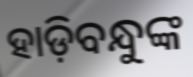
ହାଡ଼ିବନ୍ଧୁଙ୍କ